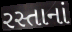
રસ્તાનાં